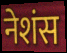
नेशंस